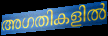
അഗതികളിൽ